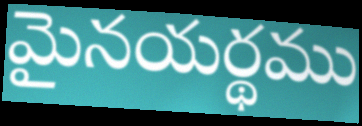
మైనయర్థము